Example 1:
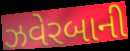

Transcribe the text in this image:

ઝવેરબાની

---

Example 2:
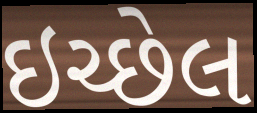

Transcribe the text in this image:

ઇચ્છેલ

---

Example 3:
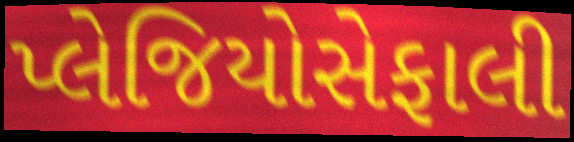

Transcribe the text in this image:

પ્લેજિયોસેફાલી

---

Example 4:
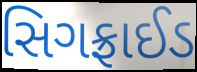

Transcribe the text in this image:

સિગફ્રાઈડ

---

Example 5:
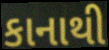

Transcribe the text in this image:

કાનાથી